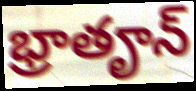
భ్రాతౄన్